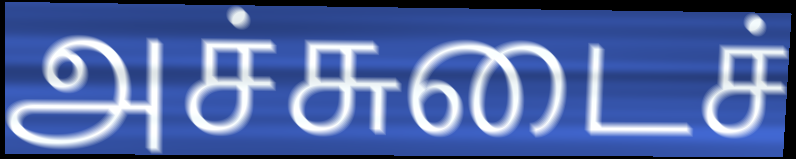
அச்சுடைச்